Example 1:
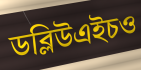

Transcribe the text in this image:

ডব্লিউএইচও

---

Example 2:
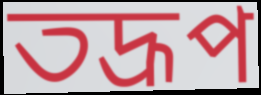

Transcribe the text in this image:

তদ্রূপ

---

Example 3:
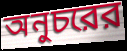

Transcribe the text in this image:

অনুচরের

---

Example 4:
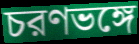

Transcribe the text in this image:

চরণভঙ্গে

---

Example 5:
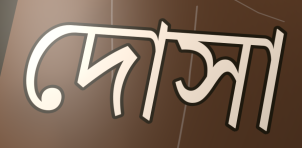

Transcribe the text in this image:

দোসা